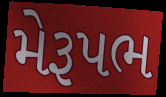
મેરૂપભ